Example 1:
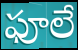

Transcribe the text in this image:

ఫూలే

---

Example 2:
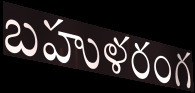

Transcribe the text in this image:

బహుళరంగ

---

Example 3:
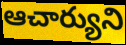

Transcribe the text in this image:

ఆచార్యుని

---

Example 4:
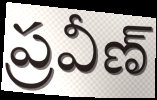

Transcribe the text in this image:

ప్రవీణ్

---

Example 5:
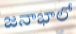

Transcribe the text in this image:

జనాభాలో